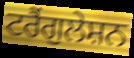
ਟਰੈਂਗੁਲੇਸ਼ਨ